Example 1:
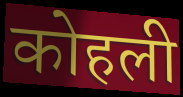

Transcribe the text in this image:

कोहली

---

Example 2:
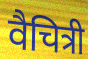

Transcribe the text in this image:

वैचित्री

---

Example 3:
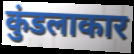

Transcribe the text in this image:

कुंडलाकार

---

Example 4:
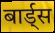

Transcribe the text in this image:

बार्ड्स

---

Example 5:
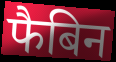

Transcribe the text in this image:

फैबिन